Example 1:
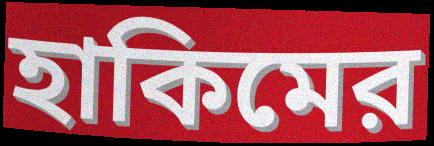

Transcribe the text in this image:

হাকিমের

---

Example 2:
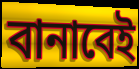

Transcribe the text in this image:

বানাবেই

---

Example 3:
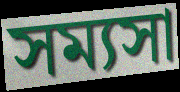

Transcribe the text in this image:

সম্যসা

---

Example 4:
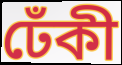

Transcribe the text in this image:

ঢেঁকী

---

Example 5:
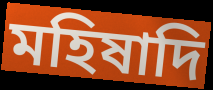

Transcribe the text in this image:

মহিষাদি